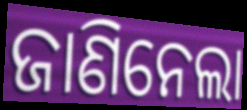
ଜାଣିନେଲା